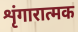
शृंगारात्मक